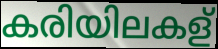
കരിയിലകള്